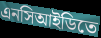
এনসিআইডিতে